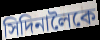
সিদিনালৈকে